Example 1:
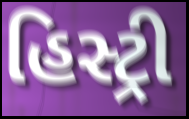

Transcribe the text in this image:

હિસ્ટ્રી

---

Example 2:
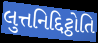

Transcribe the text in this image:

લુત્તનિદ્દિટ્ઠોતિ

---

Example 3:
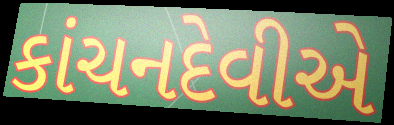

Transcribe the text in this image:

કાંચનદેવીએ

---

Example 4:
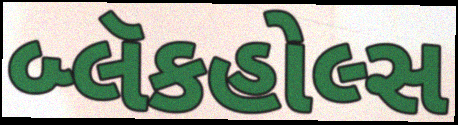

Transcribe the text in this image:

બ્લૅકહોલ્સ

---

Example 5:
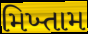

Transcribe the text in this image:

મિખ્તામ